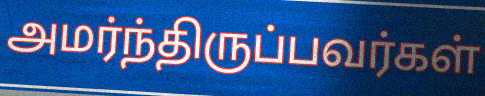
அமர்ந்திருப்பவர்கள்